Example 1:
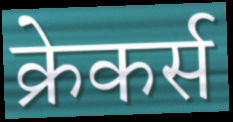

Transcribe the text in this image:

क्रेकर्स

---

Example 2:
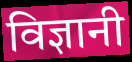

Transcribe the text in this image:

विज्ञानी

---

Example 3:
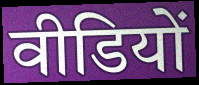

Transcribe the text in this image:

वीडियों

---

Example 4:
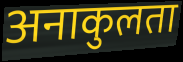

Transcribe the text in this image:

अनाकुलता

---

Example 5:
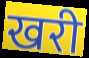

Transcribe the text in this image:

खरी